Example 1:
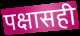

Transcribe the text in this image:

पक्षासही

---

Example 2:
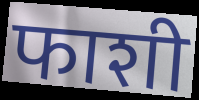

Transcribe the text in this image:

फाशी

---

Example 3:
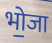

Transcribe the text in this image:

भो॒जा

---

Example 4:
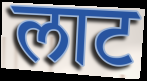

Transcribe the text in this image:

लाट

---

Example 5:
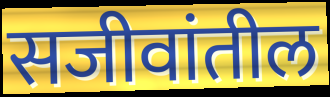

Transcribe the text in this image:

सजीवांतील